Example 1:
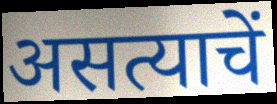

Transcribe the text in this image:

असत्याचें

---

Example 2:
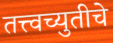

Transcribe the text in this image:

तत्त्वच्युतीचे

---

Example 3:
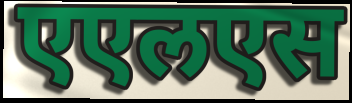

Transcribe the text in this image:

एएलएस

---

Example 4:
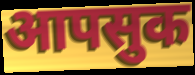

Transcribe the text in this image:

आपसुक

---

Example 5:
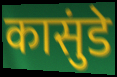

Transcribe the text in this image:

कासुंडे